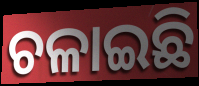
ଚଳାଇଛି